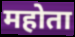
महोता